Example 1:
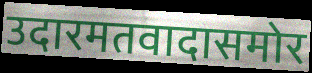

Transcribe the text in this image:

उदारमतवादासमोर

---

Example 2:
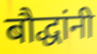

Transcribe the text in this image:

बौद्धांनी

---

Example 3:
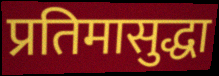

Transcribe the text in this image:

प्रतिमासुद्धा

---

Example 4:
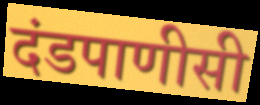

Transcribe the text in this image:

दंडपाणीसी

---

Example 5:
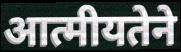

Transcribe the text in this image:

आत्मीयतेने